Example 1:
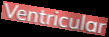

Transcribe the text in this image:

Ventricular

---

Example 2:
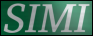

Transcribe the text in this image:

SIMI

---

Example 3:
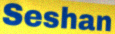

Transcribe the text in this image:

Seshan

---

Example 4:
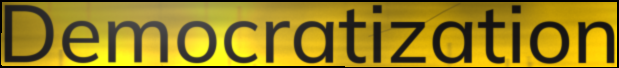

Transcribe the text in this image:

Democratization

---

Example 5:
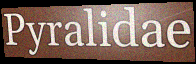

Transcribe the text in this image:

Pyralidae